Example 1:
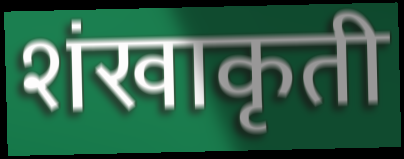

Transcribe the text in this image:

शंखाकृती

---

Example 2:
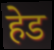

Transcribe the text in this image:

हेड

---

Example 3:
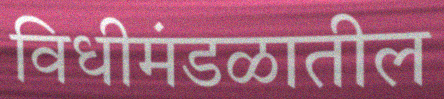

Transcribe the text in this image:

विधीमंडळातील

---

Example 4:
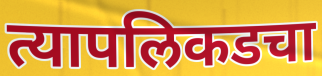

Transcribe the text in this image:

त्यापलिकडचा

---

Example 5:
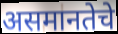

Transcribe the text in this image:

असमानतेचे